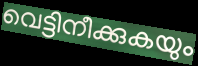
വെട്ടിനീക്കുകയും